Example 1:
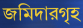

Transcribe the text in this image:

জমিদারগৃহ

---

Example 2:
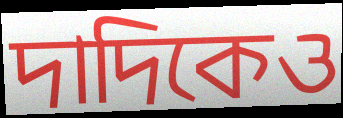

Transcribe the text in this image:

দাদিকেও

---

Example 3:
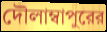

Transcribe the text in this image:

দৌলাম্বাপুরের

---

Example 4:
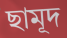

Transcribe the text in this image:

ছামূদ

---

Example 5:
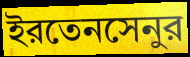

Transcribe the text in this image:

ইরতেনসেনুর